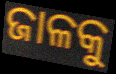
ଜାଳକୁ